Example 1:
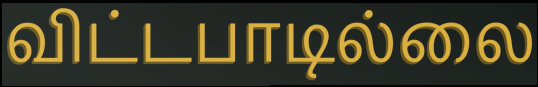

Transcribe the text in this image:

விட்டபாடில்லை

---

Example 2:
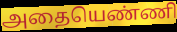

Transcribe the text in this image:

அதையெண்ணி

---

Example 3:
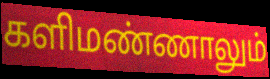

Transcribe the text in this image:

களிமண்ணாலும்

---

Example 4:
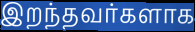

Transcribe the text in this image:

இறந்தவர்களாக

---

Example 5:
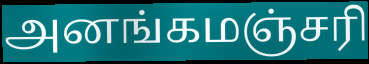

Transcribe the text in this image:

அனங்கமஞ்சரி